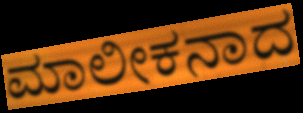
ಮಾಲೀಕನಾದ